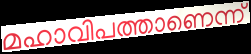
മഹാവിപത്താണെന്ന്